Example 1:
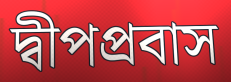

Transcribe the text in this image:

দ্বীপপ্রবাস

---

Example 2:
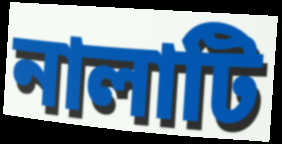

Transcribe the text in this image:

নালাটি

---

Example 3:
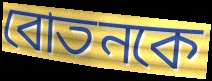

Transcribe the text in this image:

বোতনকে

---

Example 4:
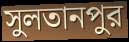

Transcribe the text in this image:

সুলতানপুর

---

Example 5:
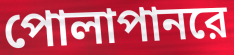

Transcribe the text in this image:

পোলাপানরে